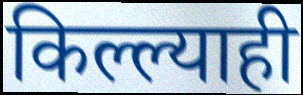
किल्ल्याही